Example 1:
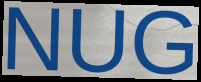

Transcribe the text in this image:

NUG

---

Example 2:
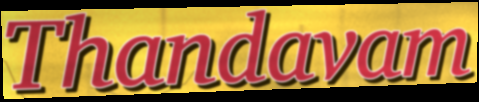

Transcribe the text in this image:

Thandavam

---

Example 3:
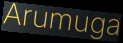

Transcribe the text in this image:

Arumuga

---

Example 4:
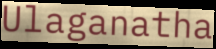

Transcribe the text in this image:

Ulaganatha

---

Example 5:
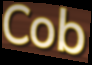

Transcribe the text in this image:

Cob